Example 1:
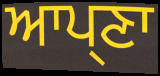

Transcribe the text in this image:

ਆਪ੍ਣਾ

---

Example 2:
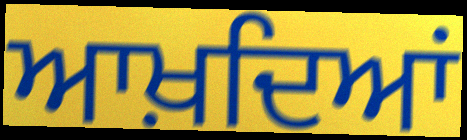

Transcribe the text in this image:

ਆਖ਼ਦਿਆਂ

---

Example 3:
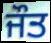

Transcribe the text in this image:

ਜੌਤ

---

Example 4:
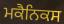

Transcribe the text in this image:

ਮਕੈਨਿਕਸ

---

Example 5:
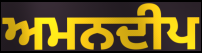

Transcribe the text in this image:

ਅਮਨਦੀਪ